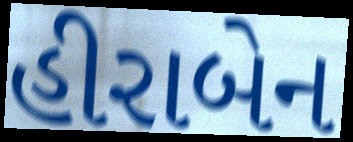
હીરાબેન